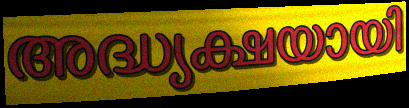
അദ്ധ്യക്ഷയായി